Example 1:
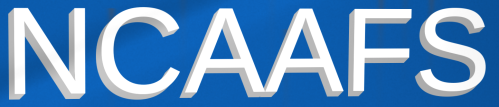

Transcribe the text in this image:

NCAAFS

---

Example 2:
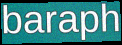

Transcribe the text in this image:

baraph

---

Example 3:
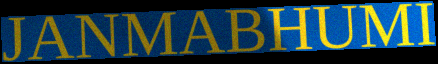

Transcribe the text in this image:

JANMABHUMI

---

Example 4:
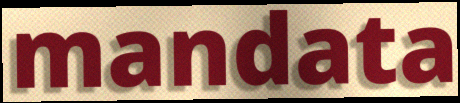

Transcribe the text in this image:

mandata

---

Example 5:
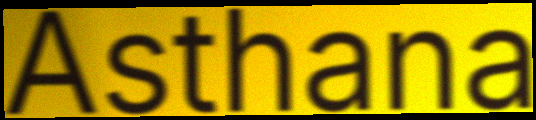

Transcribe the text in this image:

Asthana